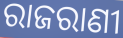
ରାଜରାଣୀ